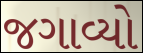
જગાવ્યો